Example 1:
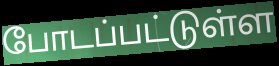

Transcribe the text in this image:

போடப்பட்டுள்ள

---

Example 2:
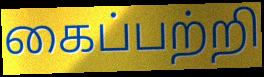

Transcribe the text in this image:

கைப்பற்றி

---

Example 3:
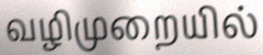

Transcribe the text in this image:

வழிமுறையில்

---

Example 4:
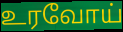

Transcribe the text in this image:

உரவோய்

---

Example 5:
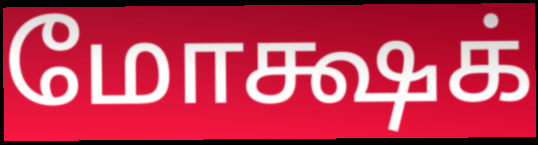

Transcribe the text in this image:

மோக்ஷக்